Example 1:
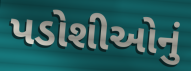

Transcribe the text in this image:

પડોશીઓનું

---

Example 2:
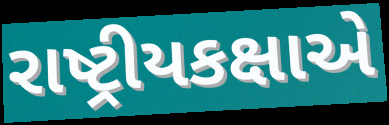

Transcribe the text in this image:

રાષ્ટ્રીયકક્ષાએ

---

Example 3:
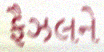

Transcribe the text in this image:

ફૈઝલને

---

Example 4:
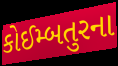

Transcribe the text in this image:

કોઈમ્બતુરના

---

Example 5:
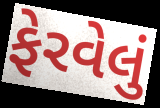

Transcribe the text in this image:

ફેરવેલું